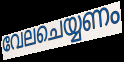
വേലചെയ്യണം